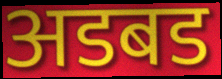
अडबड